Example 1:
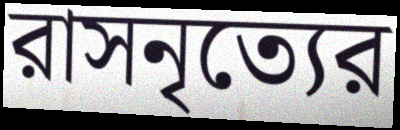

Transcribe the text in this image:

রাসনৃত্যের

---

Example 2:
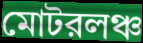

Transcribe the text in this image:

মোটরলঞ্চ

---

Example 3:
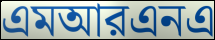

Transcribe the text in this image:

এমআরএনএ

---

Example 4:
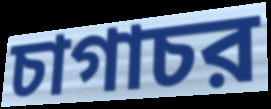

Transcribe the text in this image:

চাগাচর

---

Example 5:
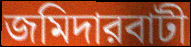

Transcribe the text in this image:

জমিদারবাটী